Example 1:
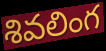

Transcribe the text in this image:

శివలింగ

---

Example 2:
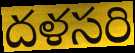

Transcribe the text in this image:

దళసరి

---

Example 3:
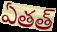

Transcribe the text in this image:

ఏతత్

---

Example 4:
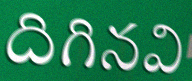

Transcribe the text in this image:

దిగినవి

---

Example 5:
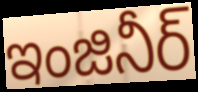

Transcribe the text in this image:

ఇంజినీర్